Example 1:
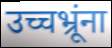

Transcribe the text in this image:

उच्चभ्रूंना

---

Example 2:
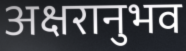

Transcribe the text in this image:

अक्षरानुभव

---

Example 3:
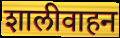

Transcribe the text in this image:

शालीवाहन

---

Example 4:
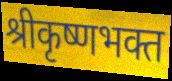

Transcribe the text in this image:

श्रीकृष्णभक्त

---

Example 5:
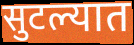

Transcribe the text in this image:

सुटल्यात